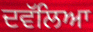
ਦਵੱਲਿਆ